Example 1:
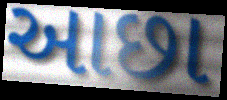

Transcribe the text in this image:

આછા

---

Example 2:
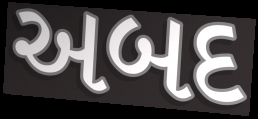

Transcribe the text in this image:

અબદ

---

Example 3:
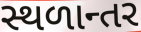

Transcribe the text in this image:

સ્થળાન્તર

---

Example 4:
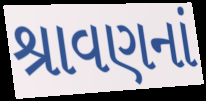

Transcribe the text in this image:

શ્રાવણનાં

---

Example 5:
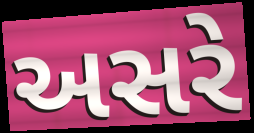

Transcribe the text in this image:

અસરે